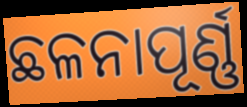
ଛଳନାପୂର୍ଣ୍ଣ